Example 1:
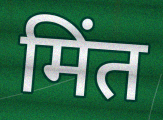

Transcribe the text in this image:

मिंत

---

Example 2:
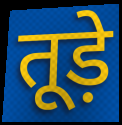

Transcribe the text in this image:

तूड़े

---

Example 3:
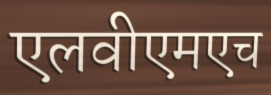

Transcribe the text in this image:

एलवीएमएच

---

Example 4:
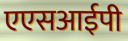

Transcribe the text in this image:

एएसआईपी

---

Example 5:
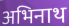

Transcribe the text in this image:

अभिनाथ